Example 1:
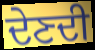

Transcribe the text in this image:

ਦੇਣਦੀ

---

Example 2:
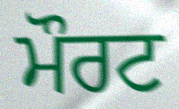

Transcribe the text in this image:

ਮੌਰਟ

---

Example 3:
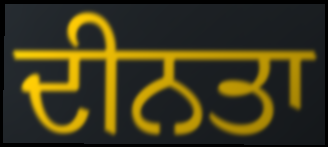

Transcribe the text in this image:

ਦੀਨਤਾ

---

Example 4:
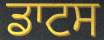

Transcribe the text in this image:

ਡਾਟਸ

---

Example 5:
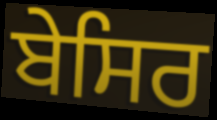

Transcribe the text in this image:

ਬੇਸਿਰ